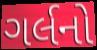
ગર્લનો